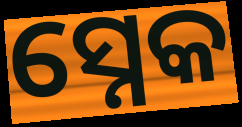
ସ୍ନେକ